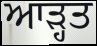
ਆੜ੍ਹਤ